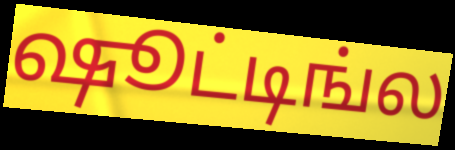
ஷூட்டிங்ல